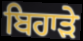
ਬਿਹਾੜੇ